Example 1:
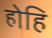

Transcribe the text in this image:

होहि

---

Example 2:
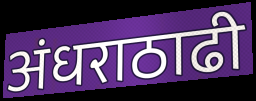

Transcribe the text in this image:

अंधराठाढी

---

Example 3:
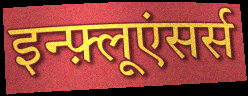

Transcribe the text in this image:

इन्फ़्लूएंसर्स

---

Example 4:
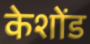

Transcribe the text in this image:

केशोंड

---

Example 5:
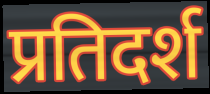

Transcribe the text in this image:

प्रतिदर्श